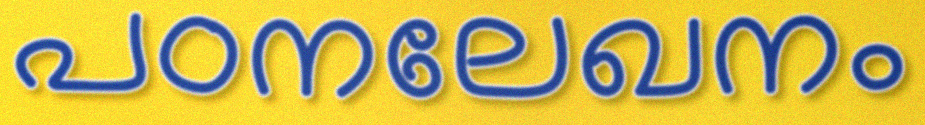
പഠനലേഖനം